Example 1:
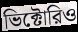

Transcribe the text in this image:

ভিক্টোরিও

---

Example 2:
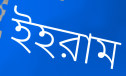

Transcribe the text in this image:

ইহরাম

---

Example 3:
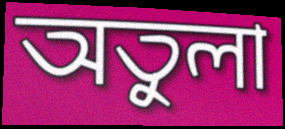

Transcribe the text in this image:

অতুলা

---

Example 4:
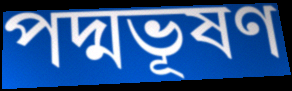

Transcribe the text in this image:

পদ্মভূষণ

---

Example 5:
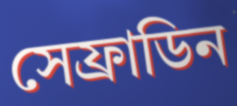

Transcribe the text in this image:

সেফ্রাডিন